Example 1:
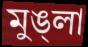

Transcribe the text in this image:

মুঙ্লা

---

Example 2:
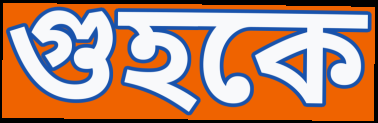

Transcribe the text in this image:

গুহকে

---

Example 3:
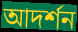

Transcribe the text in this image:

আদর্শন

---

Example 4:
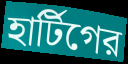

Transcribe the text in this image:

হার্টিগের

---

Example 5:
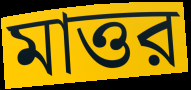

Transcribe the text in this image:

মাত্তর